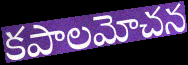
కపాలమోచన